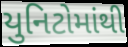
યુનિટોમાંથી